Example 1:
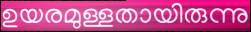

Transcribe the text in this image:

ഉയരമുള്ളതായിരുന്നു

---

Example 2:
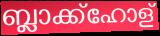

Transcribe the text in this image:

ബ്ലാക്ക്ഹോള്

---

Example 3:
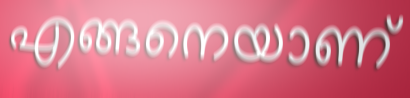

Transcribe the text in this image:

എങ്ങനെയാണ്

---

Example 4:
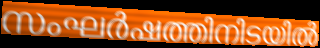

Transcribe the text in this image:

സംഘർഷത്തിനിടയിൽ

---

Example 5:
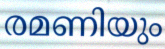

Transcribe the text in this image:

രമണിയും